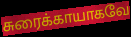
சுரைக்காயாகவே